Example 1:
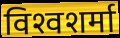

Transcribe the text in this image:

विश्वशर्मा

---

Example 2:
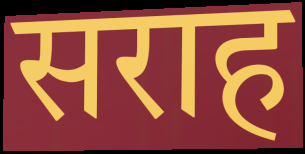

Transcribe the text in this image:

सराह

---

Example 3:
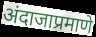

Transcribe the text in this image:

अंदाजाप्रमाणे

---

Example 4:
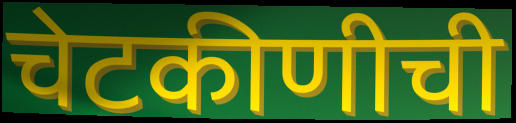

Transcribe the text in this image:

चेटकीणीची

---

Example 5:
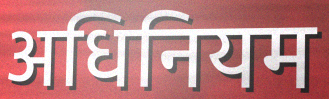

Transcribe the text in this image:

अधिनियम